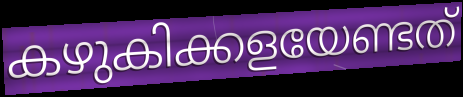
കഴുകിക്കളയേണ്ടത്